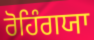
ਰੋਹਿੰਗਯਾ